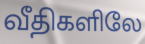
வீதிகளிலே